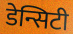
डेन्सिटी